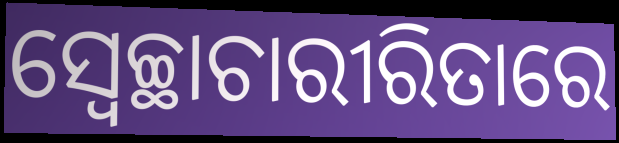
ସ୍ଵେଚ୍ଛାଚାରୀରିତାରେ